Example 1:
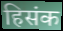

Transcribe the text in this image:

हिसंक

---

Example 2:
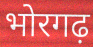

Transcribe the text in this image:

भोरगढ़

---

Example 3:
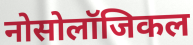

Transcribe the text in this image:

नोसोलॉजिकल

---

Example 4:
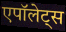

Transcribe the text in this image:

एपॉलेट्स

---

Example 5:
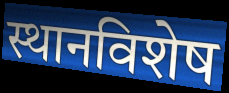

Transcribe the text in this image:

स्थानविशेष